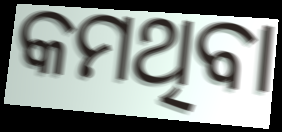
କମଥିବା